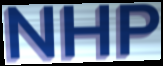
NHP